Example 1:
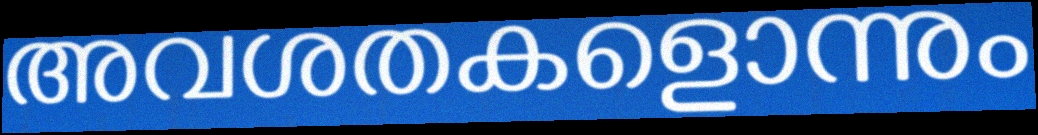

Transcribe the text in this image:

അവശതകളൊന്നും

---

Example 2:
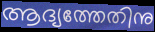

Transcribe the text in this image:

ആദ്യത്തേതിനു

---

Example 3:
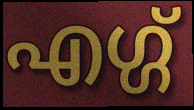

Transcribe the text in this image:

എഗ്ഗ്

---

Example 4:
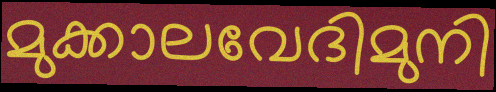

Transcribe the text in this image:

മുക്കാലവേദിമുനി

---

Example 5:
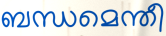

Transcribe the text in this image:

ബന്ധമെന്തീ